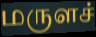
மருளச்